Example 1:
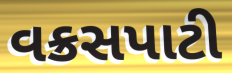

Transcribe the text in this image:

વક્રસપાટી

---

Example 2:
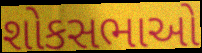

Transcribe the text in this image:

શોકસભાઓ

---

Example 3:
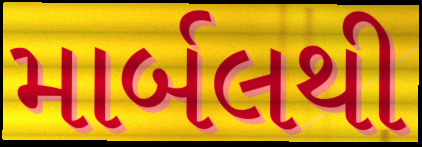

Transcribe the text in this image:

માર્બલથી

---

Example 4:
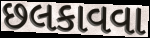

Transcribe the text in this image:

છલકાવવા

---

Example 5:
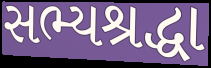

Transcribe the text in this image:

સભ્યશ્રદ્ધા